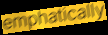
emphatically